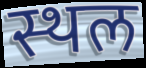
स्थल